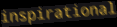
inspirational